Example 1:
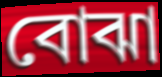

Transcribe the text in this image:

বোঝা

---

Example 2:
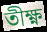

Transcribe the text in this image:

তীক্ষ্ণ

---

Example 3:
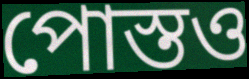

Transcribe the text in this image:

পোস্তও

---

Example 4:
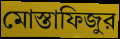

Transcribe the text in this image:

মোস্তাফিজুর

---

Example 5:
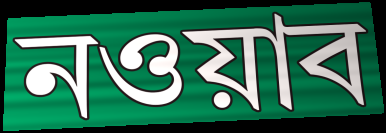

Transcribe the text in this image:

নওয়াব